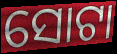
ସୋଟା